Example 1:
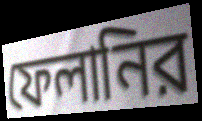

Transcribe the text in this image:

ফেলানির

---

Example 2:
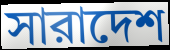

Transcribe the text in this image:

সারাদেশ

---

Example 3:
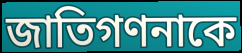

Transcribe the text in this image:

জাতিগণনাকে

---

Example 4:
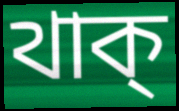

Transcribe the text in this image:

থাক্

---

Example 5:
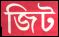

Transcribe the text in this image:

জিট